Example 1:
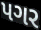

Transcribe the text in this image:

પગર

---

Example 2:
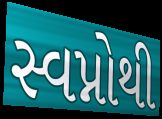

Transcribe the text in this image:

સ્વપ્નોથી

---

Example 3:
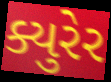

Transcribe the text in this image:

ક્યુરેર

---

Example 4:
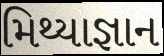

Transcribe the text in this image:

મિથ્યાજ્ઞાન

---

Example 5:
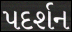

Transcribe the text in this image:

પદર્શન